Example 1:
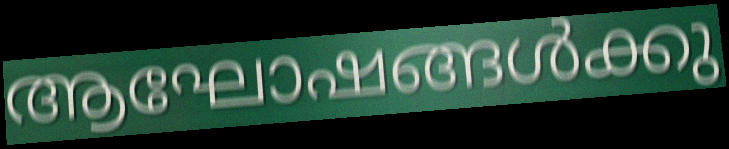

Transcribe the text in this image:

ആഘോഷങ്ങൾക്കു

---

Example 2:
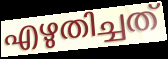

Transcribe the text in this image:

എഴുതിച്ചത്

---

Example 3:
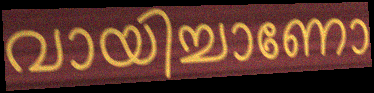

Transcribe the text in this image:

വായിച്ചാണോ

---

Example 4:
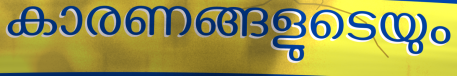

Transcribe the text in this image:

കാരണങ്ങളുടെയും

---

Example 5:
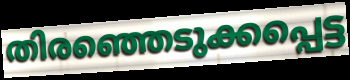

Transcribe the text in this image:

തിരഞ്ഞെടുക്കപ്പെട്ട